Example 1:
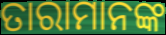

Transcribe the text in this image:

ତାରାମାନଙ୍କ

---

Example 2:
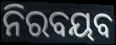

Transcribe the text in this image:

ନିରବୟବ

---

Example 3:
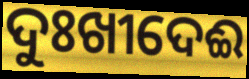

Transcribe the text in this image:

ଦୁଃଖୀଦେଈ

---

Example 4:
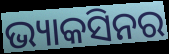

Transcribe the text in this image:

ଭ୍ୟାକସିନର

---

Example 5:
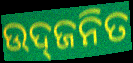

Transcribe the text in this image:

ଉଦ୍‌ଜନିତ